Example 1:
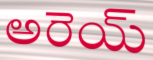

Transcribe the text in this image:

అరెయ్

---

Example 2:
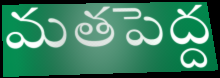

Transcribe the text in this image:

మతపెద్ద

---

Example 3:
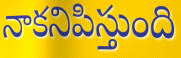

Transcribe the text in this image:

నాకనిపిస్తుంది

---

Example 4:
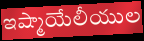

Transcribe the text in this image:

ఇష్మాయేలీయుల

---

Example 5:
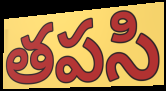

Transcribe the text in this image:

తపసి